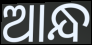
ଆନ୍ଧ